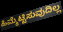
ಹಿಮ್ಮೆಟ್ಟಿಸುವುದಿಲ್ಲ